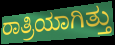
ರಾತ್ರಿಯಾಗಿತ್ತು